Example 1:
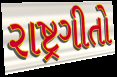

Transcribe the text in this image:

રાષ્ટ્રગીતો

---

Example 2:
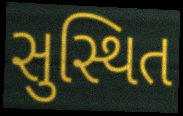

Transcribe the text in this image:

સુસ્થિત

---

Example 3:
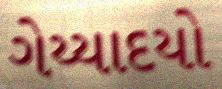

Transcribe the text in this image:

ગેય્યાદયો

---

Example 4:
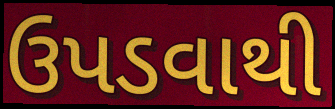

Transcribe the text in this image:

ઉપડવાથી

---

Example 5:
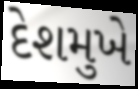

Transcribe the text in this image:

દેશમુખે